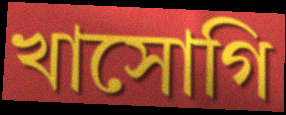
খাসোগি